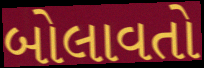
બોલાવતો